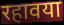
रहावया